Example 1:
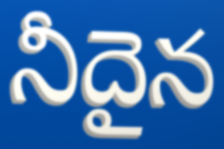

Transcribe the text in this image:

నీదైన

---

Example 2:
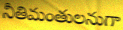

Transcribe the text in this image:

నీతిమంతులనుగా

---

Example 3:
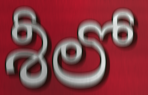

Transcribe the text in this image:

శీలో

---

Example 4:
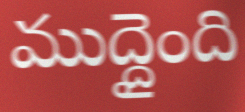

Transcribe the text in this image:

ముద్దైంది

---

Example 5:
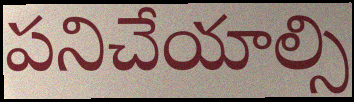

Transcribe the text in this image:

పనిచేయాల్సి